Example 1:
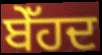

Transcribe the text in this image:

ਬੇੱਹਦ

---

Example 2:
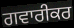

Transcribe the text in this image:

ਗਵਾਰੀਕਰ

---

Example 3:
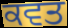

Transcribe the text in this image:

ਕਵਤ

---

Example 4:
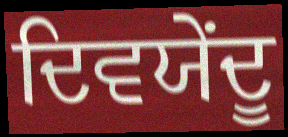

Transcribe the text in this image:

ਦਿਵਯੇਂਦੂ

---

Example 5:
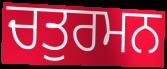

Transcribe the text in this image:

ਚਤੁਰਮਨ